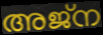
അജ്ന